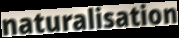
naturalisation